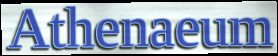
Athenaeum